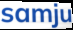
samju